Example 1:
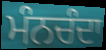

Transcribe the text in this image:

ਮੰਨਚੰਦਾ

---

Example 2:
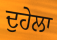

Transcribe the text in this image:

ਦੁਹੇਲਾ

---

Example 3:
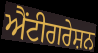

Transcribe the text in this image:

ਐਂਟੀਗਰੇਸ਼ਨ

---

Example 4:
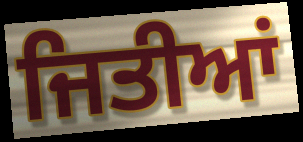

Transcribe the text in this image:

ਜਿਤੀਆਂ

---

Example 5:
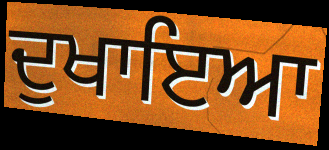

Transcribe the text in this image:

ਦੁਖਾਇਆ